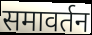
समावर्तन